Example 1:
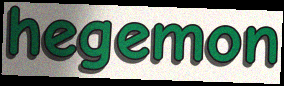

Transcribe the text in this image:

hegemon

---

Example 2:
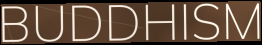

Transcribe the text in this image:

BUDDHISM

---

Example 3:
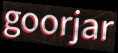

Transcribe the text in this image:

goorjar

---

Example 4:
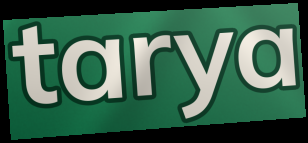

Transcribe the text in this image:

tarya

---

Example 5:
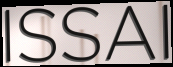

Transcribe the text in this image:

ISSAI